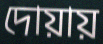
দোয়ায়